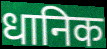
धानिक